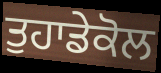
ਤੁਹਾਡੇਕੋਲ